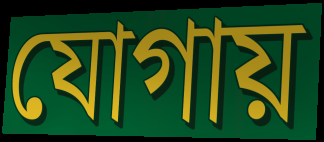
যোগায়